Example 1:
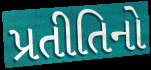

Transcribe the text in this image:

પ્રતીતિનો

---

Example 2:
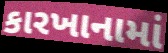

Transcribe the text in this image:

કારખાનામાં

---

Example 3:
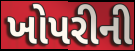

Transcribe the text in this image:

ખોપરીની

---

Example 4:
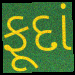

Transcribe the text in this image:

ફૂદાં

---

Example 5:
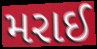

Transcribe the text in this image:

મરાઈ